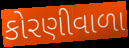
કોરણીવાળા